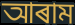
আৰাম